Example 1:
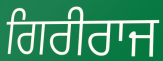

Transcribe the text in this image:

ਗਿਰੀਰਾਜ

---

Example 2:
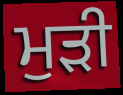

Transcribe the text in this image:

ਮੁੜੀ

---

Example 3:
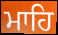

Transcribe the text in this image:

ਮਾਹਿ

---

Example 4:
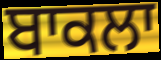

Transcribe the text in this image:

ਬਾਕਲਾ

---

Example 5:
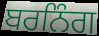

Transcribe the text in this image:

ਬਰਨਿੰਗ